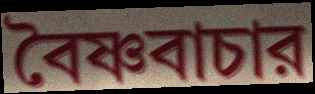
বৈষ্ণবাচার